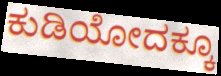
ಕುಡಿಯೋದಕ್ಕೂ